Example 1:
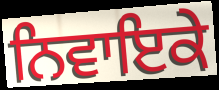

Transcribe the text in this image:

ਨਿਵਾਇਕੇ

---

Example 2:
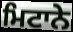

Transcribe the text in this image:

ਮਿਟਾਨੇ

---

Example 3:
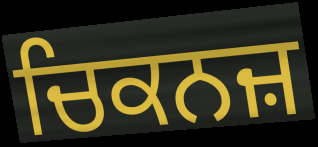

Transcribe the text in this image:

ਚਿਕਨਜ਼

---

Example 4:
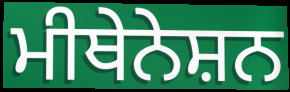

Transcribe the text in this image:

ਮੀਥੇਨੇਸ਼ਨ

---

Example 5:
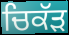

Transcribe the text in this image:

ਚਿਕੱੜ